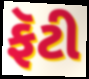
ફૅટી